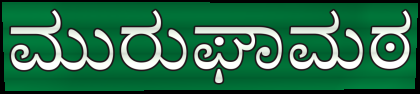
ಮುರುಘಾಮಠ